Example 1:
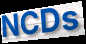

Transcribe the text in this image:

NCDs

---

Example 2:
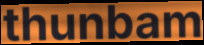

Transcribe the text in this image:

thunbam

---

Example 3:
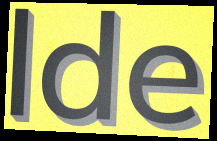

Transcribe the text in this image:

lde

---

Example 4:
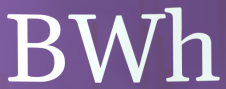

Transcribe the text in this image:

BWh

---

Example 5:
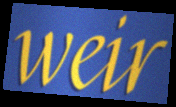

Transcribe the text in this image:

weir